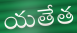
యతేత